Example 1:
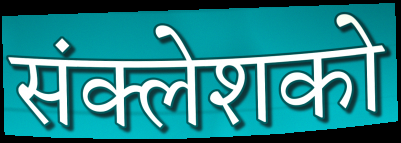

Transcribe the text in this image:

संक्लेशको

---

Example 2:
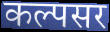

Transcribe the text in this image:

कल्पसर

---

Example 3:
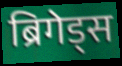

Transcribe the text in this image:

ब्रिगेड्स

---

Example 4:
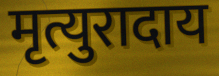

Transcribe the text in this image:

मृत्युरादाय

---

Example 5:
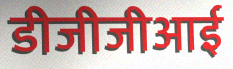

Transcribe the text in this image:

डीजीजीआई